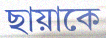
ছায়াকে